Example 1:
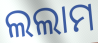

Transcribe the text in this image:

ଲଲାମ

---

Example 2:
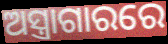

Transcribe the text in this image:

ଅସ୍ତ୍ରାଗାରରେ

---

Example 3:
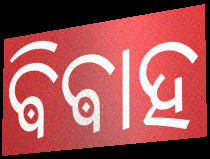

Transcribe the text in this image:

ଵିଵାହ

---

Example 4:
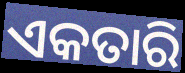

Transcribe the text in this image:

ଏକତାରି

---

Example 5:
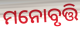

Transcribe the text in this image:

ମନୋବୃତ୍ତି